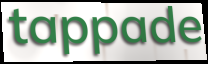
tappade